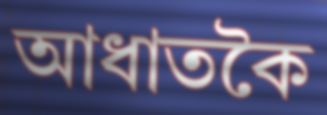
আধাতকৈ